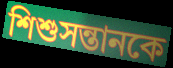
শিশুসন্তানকে